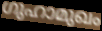
ഗുഹാമുഖം